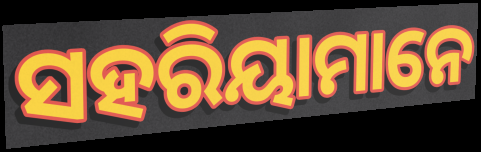
ସହରିୟାମାନେ